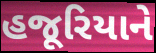
હજૂરિયાને